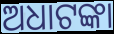
ଅଧାଟଙ୍କା